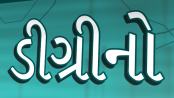
ડીગ્રીનો